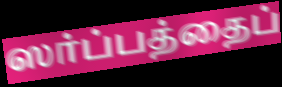
ஸர்ப்பத்தைப்